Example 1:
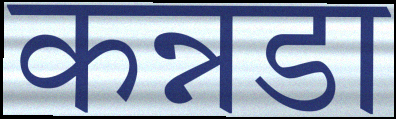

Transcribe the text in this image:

कन्नडा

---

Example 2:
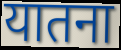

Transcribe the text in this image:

यातना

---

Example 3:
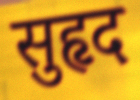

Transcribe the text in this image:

सुहृद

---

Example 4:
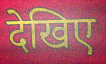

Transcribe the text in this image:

देखिए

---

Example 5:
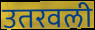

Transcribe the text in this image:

उतरवली